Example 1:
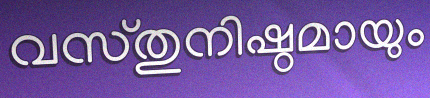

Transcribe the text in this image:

വസ്തുനിഷ്ഠമായും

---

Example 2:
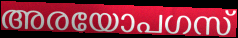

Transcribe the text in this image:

അരയോപഗസ്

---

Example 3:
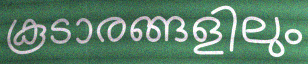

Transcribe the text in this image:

കൂടാരങ്ങളിലും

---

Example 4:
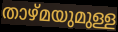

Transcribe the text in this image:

താഴ്മയുമുള്ള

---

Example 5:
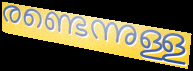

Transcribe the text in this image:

രണ്ടെന്നുള്ള